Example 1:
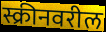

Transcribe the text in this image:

स्क्रीनवरील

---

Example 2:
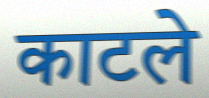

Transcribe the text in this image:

काटले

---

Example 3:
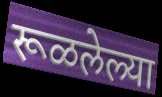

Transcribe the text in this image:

रूळलेल्या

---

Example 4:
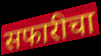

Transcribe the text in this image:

सफारीचा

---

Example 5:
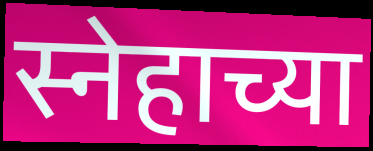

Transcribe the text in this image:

स्नेहाच्या